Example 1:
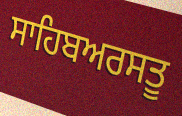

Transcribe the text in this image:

ਸਾਹਿਬਅਰਸਤੂ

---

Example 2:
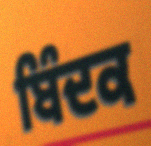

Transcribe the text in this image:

ਬਿੰਦਕ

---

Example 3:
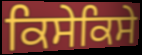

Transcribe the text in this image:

ਕਿਸੇਕਿਸੇ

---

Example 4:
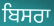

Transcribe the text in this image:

ਬਿਸਰਾ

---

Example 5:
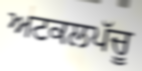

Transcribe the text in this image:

ਅਟਕਲਪੱਚੂ